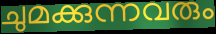
ചുമക്കുന്നവരും